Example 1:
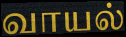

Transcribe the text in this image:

வாயல்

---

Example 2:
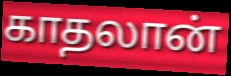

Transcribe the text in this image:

காதலான்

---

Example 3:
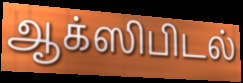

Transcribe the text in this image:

ஆக்ஸிபிடல்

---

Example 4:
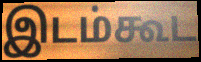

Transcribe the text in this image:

இடம்கூட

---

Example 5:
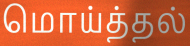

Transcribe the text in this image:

மொய்த்தல்